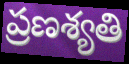
ప్రణశ్యతి